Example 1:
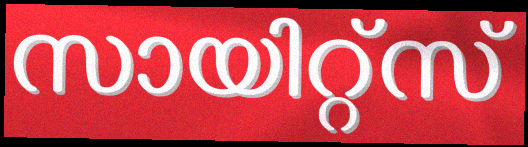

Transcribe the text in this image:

സായിറ്റ്സ്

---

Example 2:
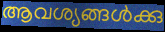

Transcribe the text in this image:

ആവശ്യങ്ങൾക്കു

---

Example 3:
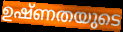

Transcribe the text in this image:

ഉഷ്ണതയുടെ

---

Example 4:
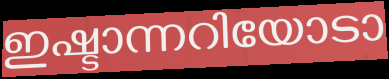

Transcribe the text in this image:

ഇഷ്ടാന്നറിയോടാ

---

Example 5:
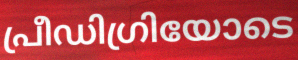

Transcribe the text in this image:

പ്രീഡിഗ്രിയോടെ